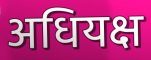
अधियक्ष